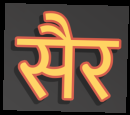
सैर